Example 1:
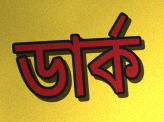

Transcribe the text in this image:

ডার্ক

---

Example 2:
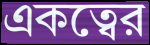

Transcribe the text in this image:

একত্বের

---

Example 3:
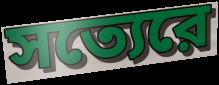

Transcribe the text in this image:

সত্যেরে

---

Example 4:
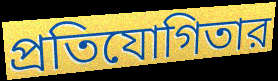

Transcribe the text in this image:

প্রতিযোগিতার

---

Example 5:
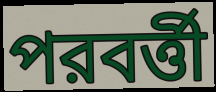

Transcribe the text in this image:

পরবর্ত্তী